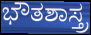
ಭೌತಶಾಸ್ತ್ರ